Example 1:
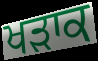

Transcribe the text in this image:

ਖੜਾਕ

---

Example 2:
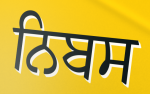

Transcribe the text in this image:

ਨਿਬਸ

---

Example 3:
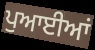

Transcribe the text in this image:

ਪੁਆਈਆਂ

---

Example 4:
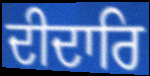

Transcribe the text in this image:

ਦੀਦਾਰਿ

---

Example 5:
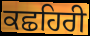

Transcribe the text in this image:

ਕਛਹਿਰੀ